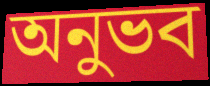
অনুভব